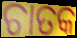
ଚାତକ